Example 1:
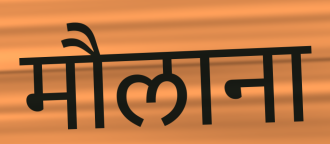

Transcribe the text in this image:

मौलाना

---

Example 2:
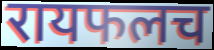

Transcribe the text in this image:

रायफलच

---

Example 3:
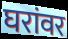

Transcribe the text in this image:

घरांवर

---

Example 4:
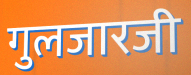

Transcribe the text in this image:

गुलजारजी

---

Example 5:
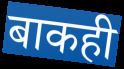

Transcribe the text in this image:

बाकही